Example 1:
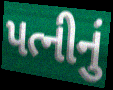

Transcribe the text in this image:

પત્નીનું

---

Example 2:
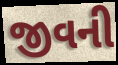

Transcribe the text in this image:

જીવની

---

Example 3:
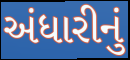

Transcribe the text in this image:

અંધારીનું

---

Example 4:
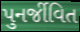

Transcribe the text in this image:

પુનર્જીવિત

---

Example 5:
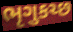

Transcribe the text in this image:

ભૃગુકચ્છ